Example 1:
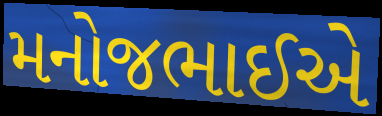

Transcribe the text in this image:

મનોજભાઈએ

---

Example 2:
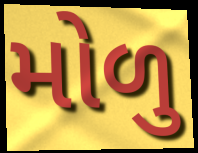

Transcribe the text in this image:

મોળુ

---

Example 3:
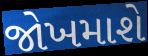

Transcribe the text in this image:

જોખમાશે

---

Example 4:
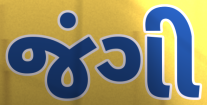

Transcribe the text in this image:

જંગી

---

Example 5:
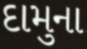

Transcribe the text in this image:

દામુના